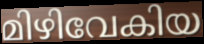
മിഴിവേകിയ